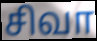
சிவா